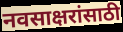
नवसाक्षरांसाठी